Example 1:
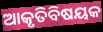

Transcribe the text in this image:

ଆକୃତିବିଷୟକ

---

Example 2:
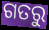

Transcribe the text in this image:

ଗତରୁ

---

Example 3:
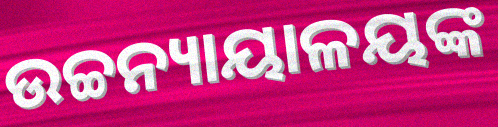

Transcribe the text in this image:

ଉଚ୍ଚନ୍ୟାୟାଳୟଙ୍କ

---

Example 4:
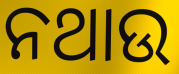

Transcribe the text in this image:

ନଥାଉ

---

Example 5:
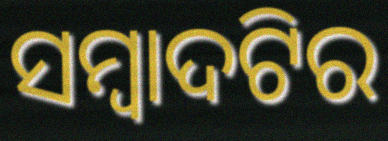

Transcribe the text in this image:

ସମ୍ବାଦଟିର